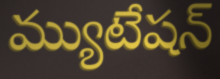
మ్యుటేషన్